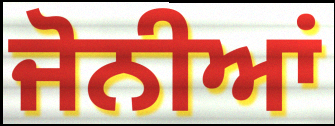
ਜੋਨੀਆਂ